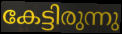
കേട്ടിരുന്നു